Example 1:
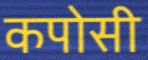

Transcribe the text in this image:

कपोसी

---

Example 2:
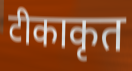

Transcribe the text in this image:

टीकाकृत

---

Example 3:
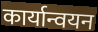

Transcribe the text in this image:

कार्यान्‍वयन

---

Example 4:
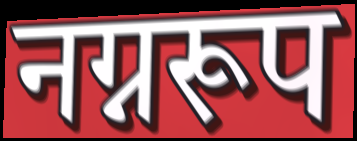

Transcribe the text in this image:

नग्नरूप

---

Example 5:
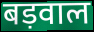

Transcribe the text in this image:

बड़वाल